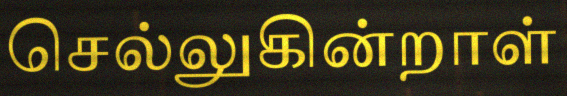
செல்லுகின்றாள்